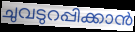
ചുവടുറപ്പിക്കാൻ